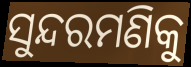
ସୁନ୍ଦରମଣିକୁ